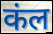
कंल